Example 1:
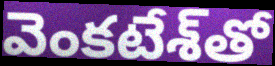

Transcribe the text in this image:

వెంకటేశ్‌తో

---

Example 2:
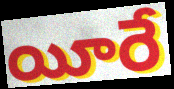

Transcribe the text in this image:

యీరే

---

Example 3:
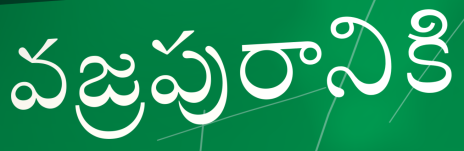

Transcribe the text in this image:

వజ్రపురానికి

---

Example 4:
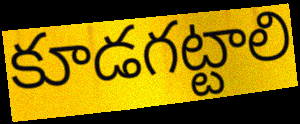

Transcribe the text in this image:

కూడగట్టాలి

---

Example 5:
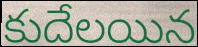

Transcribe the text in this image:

కుదేలయిన